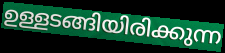
ഉള്ളടങ്ങിയിരിക്കുന്ന